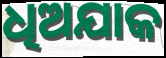
ଧିଅଯାକ